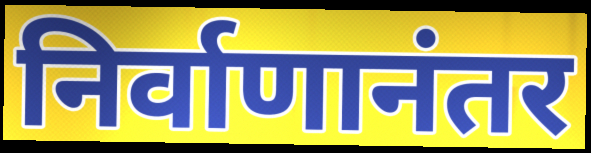
निर्वाणानंतर